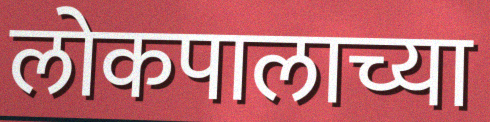
लोकपालाच्या